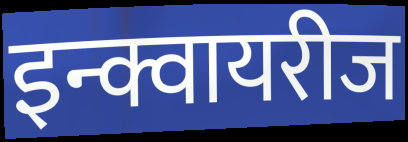
इन्क्वायरीज